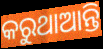
କରୁଥାଆନ୍ତି